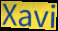
Xavi